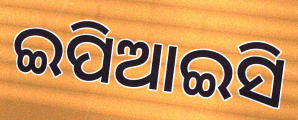
ଇପିଆଇସି